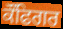
ਕੌਂਫਿਗਰ